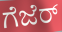
ಗೆಜೆರ್